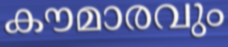
കൗമാരവും